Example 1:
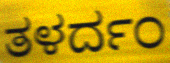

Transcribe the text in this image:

ತಳರ್ದಂ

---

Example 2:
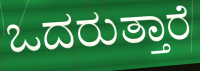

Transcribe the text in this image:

ಒದರುತ್ತಾರೆ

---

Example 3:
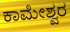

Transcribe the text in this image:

ಕಾಮೇಶ್ವರ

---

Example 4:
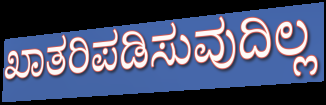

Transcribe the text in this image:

ಖಾತರಿಪಡಿಸುವುದಿಲ್ಲ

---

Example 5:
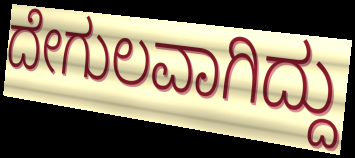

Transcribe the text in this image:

ದೇಗುಲವಾಗಿದ್ದು